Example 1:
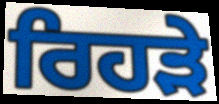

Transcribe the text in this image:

ਰਿਹੜੇ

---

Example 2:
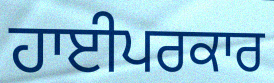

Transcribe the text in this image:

ਹਾਈਪਰਕਾਰ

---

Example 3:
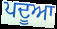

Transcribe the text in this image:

ਪਦੂਆ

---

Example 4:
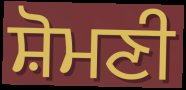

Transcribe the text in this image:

ਸ਼ੋਮਣੀ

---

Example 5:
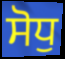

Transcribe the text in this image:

ਸੋਧੁ